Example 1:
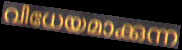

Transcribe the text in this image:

വിധേയമാക്കുന്ന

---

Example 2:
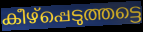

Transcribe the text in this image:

കീഴ്പ്പെടുത്തട്ടെ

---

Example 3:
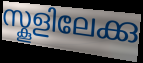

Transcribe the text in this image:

സ്കൂളിലേക്കു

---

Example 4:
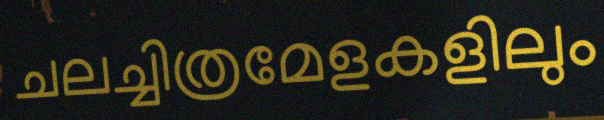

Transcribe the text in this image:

ചലച്ചിത്രമേളകളിലും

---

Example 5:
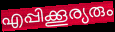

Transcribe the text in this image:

എപ്പിക്കൂര്യരും